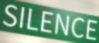
SILENCE